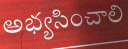
అభ్యసించాలి